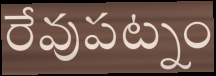
రేవుపట్నం